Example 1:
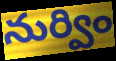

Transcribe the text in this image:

నుర్విం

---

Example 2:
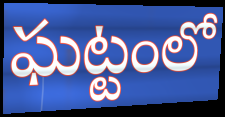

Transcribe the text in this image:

ఘట్టంలో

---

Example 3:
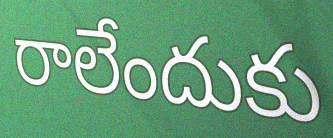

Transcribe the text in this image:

రాలేందుకు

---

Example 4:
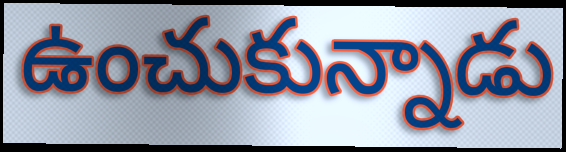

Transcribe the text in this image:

ఉంచుకున్నాడు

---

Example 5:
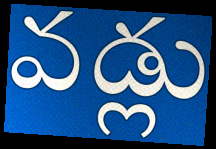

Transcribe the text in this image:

వడ్లు